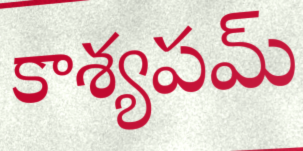
కాశ్యపమ్